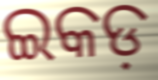
ଇକଡ଼